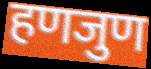
हणजुण